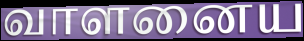
வாளனைய